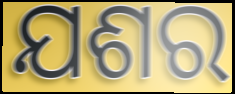
ଯଶର